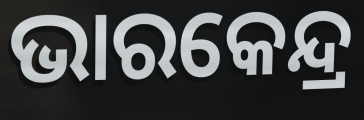
ଭାରକେନ୍ଦ୍ର